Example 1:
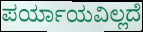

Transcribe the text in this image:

ಪರ್ಯಾಯವಿಲ್ಲದೆ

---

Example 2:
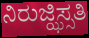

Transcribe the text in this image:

ನಿರುಜ್ಝಿಸ್ಸತಿ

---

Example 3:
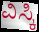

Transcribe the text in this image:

ವಿಸ್ಕಿ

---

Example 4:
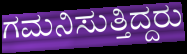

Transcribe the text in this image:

ಗಮನಿಸುತ್ತಿದ್ದರು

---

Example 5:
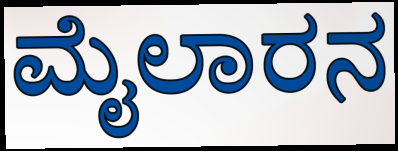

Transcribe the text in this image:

ಮೈಲಾರನ